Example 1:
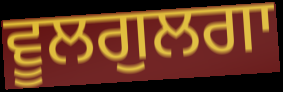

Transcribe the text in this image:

ਵੂਲਗੁਲਗਾ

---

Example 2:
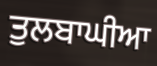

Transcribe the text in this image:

ਤੁਲਬਾਘੀਆ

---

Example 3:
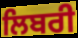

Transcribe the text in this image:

ਲਿਬਰੀ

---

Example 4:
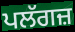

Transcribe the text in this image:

ਪਲੱਗਜ਼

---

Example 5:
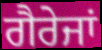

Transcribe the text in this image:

ਗੈਰੇਜਾਂ